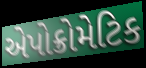
એપોક્રોમેટિક